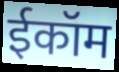
ईकॉम